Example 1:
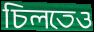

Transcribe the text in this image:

চিলতেও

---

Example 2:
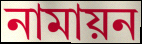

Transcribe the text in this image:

নামায়ন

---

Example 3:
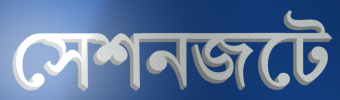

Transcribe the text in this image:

সেশনজটে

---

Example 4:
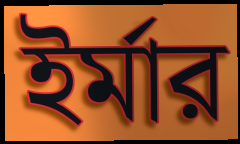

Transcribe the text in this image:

ইর্মার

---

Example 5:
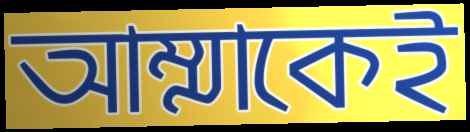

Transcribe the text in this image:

আম্মাকেই